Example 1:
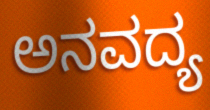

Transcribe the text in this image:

ಅನವದ್ಯ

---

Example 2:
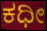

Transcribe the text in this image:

ಕಧೀ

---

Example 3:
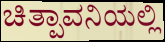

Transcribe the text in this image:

ಚಿತ್ಪಾವನಿಯಲ್ಲಿ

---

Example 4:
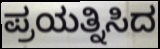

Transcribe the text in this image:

ಪ್ರಯತ್ನಿಸಿದ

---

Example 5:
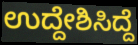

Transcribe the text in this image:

ಉದ್ದೇಶಿಸಿದ್ದೆ